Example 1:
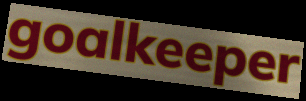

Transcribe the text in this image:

goalkeeper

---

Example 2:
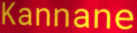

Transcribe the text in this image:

Kannane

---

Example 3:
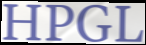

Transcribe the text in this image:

HPGL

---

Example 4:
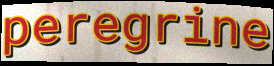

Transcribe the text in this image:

peregrine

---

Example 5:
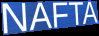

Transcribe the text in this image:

NAFTA